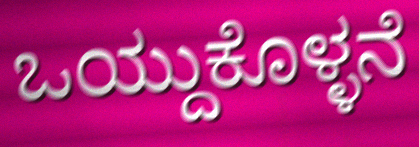
ಒಯ್ದುಕೊಳ್ಳನೆ